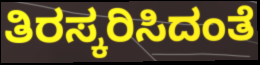
ತಿರಸ್ಕರಿಸಿದಂತೆ